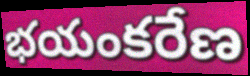
భయంకరేణ